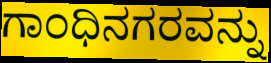
ಗಾಂಧಿನಗರವನ್ನು